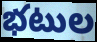
భటుల